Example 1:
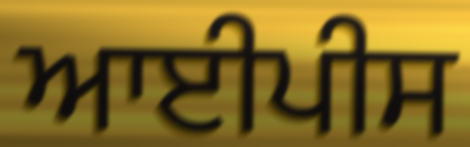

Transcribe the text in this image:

ਆਈਪੀਸ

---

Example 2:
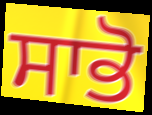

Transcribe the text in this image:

ਸਾਭੋ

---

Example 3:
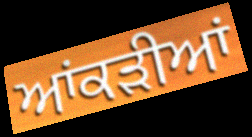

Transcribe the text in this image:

ਆਂਕੜੀਆਂ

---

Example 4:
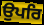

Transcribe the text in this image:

ਉਪਰਿ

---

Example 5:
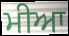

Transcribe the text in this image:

ਮੀਆ